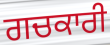
ਗਚਕਾਰੀ